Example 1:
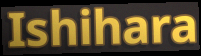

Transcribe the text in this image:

Ishihara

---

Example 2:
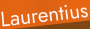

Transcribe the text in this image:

Laurentius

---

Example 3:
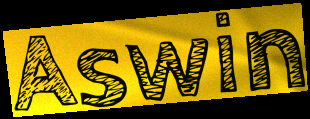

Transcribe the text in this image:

Aswin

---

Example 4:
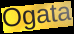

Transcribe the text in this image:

Ogata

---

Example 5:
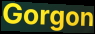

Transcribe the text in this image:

Gorgon